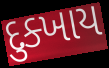
દુક્ખાય